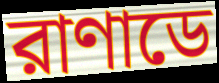
রাণাডে